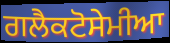
ਗਲੈਕਟੋਸੇਮੀਆ